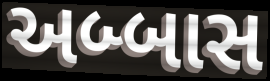
અબ્બાસ